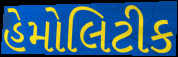
હેમોલિટીક